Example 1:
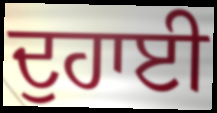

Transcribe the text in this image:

ਦੁਹਾਈ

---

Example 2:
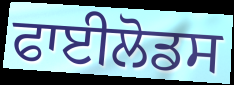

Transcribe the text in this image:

ਫਾਈਲੋਡਸ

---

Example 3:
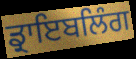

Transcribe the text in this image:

ਡ੍ਰਾਇਬਲਿੰਗ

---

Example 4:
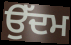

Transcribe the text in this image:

ਉੱਦਮ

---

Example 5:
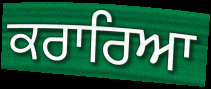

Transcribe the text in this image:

ਕਰਾਰਿਆ